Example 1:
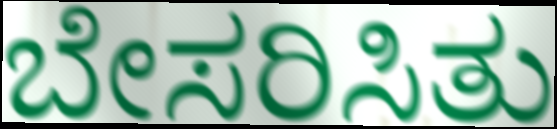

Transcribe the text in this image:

ಬೇಸರಿಸಿತು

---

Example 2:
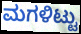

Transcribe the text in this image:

ಮಗಳಿಟ್ಟು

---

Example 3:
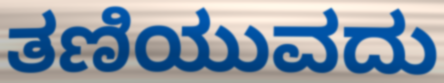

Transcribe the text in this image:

ತಣಿಯುವದು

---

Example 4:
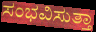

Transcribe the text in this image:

ಸಂಭವಿಸುತ್ತಾ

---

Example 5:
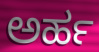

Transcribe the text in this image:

ಅರ್ಹ